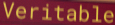
Veritable